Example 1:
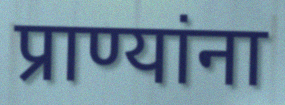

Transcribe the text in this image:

प्राण्यांना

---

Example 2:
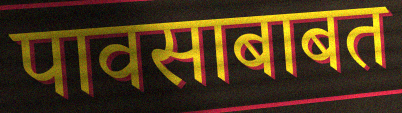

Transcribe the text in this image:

पावसाबाबत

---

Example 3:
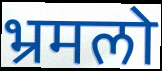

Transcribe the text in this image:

भ्रमलो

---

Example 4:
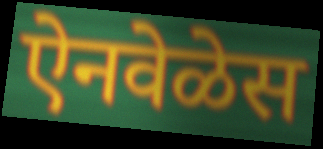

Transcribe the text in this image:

ऐनवेळेस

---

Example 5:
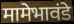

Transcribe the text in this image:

मामेभावंडे